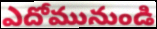
ఎదోమునుండి